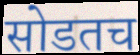
सोडतच